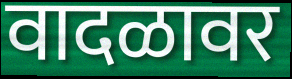
वादळावर